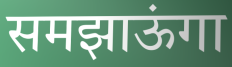
समझाऊंगा